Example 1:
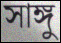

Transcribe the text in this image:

সাঙ্গু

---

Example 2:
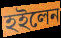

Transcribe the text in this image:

হইলেন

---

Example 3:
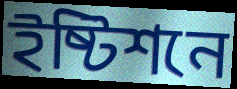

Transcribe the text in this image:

ইষ্টিশনে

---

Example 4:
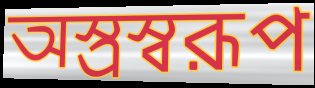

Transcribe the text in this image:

অস্ত্রস্বরূপ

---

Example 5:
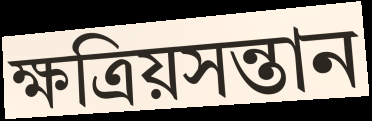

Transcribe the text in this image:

ক্ষত্রিয়সন্তান